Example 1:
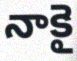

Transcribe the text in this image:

నాకై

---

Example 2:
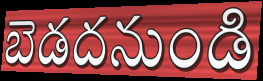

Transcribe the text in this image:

బెడదనుండి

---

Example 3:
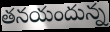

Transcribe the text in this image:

తనయందున్న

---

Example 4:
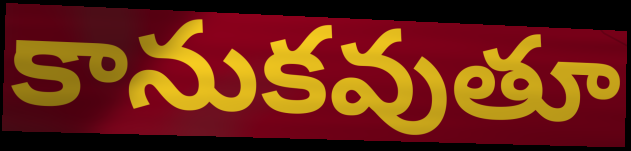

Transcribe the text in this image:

కానుకవుతూ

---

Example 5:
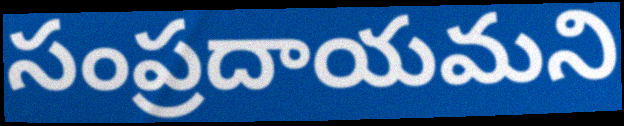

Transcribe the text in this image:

సంప్రదాయమని